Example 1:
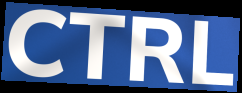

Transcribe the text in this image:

CTRL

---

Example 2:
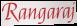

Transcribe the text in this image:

Rangaraj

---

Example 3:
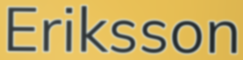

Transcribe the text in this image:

Eriksson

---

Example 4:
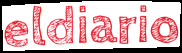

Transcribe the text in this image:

eldiario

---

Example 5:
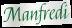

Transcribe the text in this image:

Manfredi